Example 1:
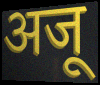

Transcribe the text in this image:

अजू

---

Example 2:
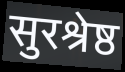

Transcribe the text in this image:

सुरश्रेष्ठ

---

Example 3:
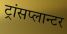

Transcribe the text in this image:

ट्रांसप्लान्टर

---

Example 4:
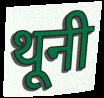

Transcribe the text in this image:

थूनी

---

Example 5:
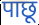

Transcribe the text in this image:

पाछू